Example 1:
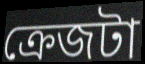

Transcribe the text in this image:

ক্রেজটা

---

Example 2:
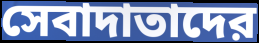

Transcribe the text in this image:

সেবাদাতাদের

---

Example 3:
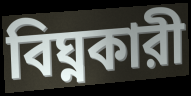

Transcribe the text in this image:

বিঘ্নকারী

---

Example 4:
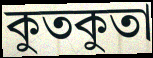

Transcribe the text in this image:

কুতকুতা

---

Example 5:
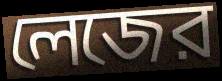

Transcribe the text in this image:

লেজের